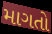
માગતો